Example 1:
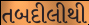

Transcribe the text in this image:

તબદીલીથી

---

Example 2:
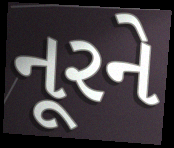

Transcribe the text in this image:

નૂરને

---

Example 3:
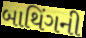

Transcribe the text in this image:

બાથિંગની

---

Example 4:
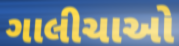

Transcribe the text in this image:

ગાલીચાઓ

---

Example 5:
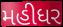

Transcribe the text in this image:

મહીધર